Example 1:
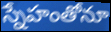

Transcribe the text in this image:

స్నేహంతోనూ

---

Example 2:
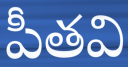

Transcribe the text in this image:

పీతవి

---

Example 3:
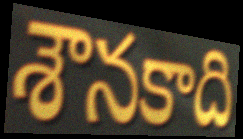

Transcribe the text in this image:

శౌనకాది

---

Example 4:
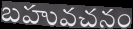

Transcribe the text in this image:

బహువచనం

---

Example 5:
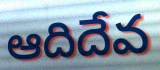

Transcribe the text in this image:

ఆదిదేవ